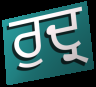
ਰੁਦ੍ਰ